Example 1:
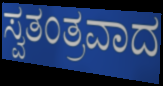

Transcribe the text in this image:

ಸ್ವತಂತ್ರವಾದ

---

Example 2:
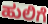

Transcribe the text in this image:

ಹುಲಿಗೆ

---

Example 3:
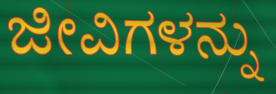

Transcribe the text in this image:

ಜೀವಿಗಳನ್ನು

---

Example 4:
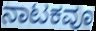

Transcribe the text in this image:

ನಾಟಕವೂ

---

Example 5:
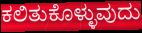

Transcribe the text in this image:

ಕಲಿತುಕೊಳ್ಳುವುದು